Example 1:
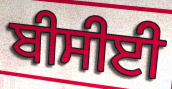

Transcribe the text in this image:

ਬੀਸੀਈ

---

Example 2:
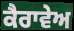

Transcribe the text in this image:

ਕੈਰਾਵੇਅ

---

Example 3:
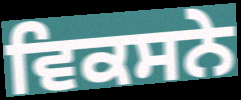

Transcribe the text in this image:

ਵਿਕਸਨੇ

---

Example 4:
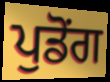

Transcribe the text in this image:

ਪੁਡੋਂਗ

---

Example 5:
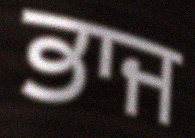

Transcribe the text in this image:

ਭਾਜ